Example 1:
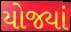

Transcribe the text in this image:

યોજ્યાં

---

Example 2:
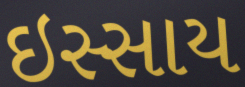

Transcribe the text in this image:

ઇસ્સાય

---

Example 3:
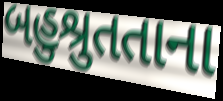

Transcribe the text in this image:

બહુશ્રુતતાના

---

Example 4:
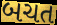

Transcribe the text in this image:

બચત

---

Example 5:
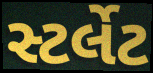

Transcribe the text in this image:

સ્ટર્લેટ